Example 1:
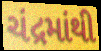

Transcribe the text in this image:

ચંદ્રમાંથી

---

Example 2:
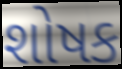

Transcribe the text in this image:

શોષક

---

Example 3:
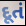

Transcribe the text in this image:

દૂતં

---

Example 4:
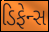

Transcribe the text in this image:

ડિફેન્સ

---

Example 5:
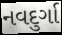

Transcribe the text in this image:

નવદુર્ગા